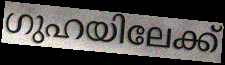
ഗുഹയിലേക്ക്